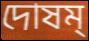
দোষম্